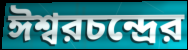
ঈশ্বরচন্দ্রের